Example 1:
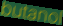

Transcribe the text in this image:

butanol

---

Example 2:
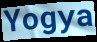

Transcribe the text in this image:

Yogya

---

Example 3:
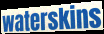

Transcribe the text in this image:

waterskins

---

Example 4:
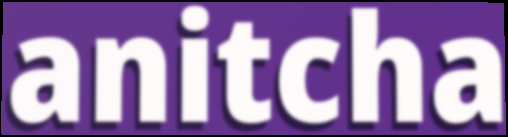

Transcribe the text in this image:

anitcha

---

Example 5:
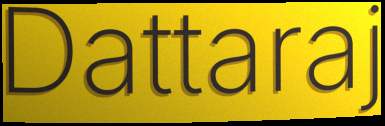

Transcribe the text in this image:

Dattaraj